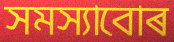
সমস্যাবোৰ